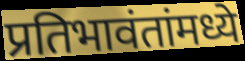
प्रतिभावंतांमध्ये